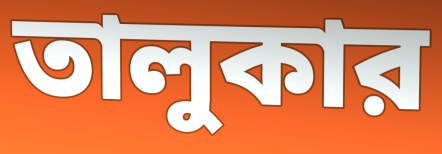
তালুকার